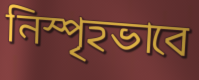
নিস্পৃহভাবে